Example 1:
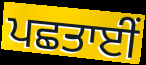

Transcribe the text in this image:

ਪਛਤਾਈਂ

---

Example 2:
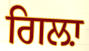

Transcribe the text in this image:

ਗਿਲ਼ਾ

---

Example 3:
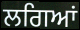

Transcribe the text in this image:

ਲਗਿਆਂ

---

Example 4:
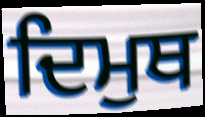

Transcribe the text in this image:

ਦਿਮੁਥ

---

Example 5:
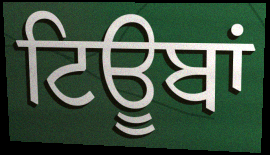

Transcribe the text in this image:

ਟਿਊਬਾਂ